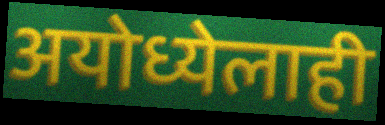
अयोध्येलाही